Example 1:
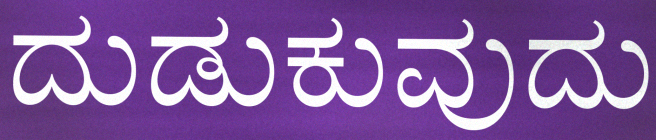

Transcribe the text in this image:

ದುಡುಕುವುದು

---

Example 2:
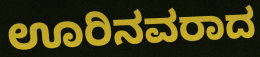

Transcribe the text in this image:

ಊರಿನವರಾದ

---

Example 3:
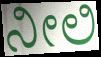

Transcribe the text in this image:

ನೀಲಿ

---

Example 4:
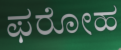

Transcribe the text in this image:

ಫರೋಹ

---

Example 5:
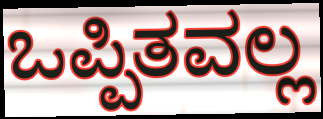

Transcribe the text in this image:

ಒಪ್ಪಿತವಲ್ಲ